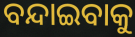
ବନ୍ଦାଇବାକୁ